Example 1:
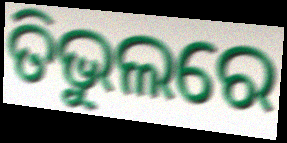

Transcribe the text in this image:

ତିଭୁଲରେ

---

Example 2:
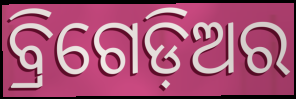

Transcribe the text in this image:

ବ୍ରିଗେଡ଼ିଅର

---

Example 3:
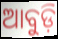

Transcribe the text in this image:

ଆବୁଡ଼ି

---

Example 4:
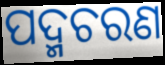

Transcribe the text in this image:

ପଦ୍ମଚରଣ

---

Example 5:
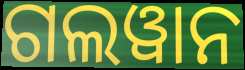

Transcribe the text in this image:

ଗଲୱାନ